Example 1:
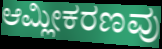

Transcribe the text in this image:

ಆಮ್ಲೀಕರಣವು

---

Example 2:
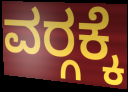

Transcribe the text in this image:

ವರ‍್ಗಕ್ಕೆ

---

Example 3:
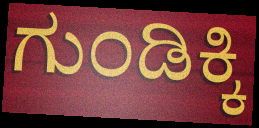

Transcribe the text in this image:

ಗುಂಡಿಕ್ಕಿ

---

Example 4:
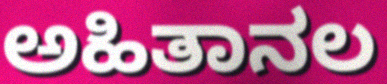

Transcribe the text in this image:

ಅಹಿತಾನಲ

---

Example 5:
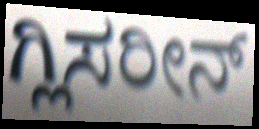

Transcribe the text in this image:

ಗ್ಲಿಸರೀನ್